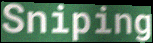
Sniping